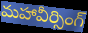
మహావీర్సింగ్